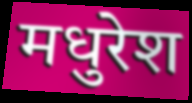
मधुरेश